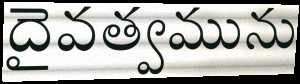
దైవత్వమును